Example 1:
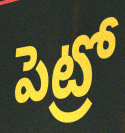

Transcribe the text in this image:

పెట్రో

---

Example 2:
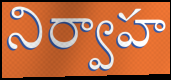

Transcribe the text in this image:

నిర్వాహ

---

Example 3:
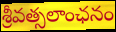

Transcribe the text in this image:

శ్రీవత్సలాంఛనం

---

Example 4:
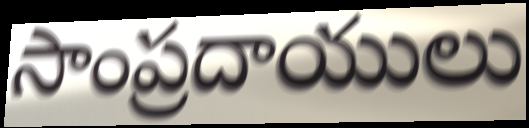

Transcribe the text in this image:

సాంప్రదాయులు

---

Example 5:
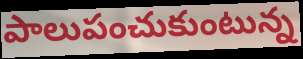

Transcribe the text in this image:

పాలుపంచుకుంటున్న